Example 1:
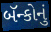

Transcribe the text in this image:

બૅન્કોનું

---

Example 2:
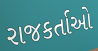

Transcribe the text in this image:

રાજકર્તાઓ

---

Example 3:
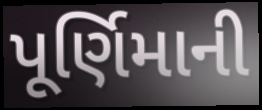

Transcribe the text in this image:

પૂર્ણિમાની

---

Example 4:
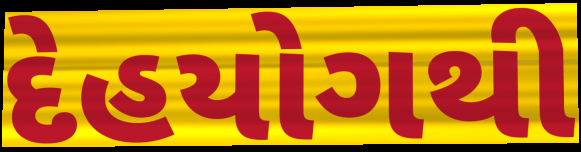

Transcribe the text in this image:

દેહયોગથી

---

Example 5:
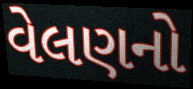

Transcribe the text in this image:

વેલણનો